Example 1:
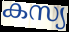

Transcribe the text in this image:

കസ്യ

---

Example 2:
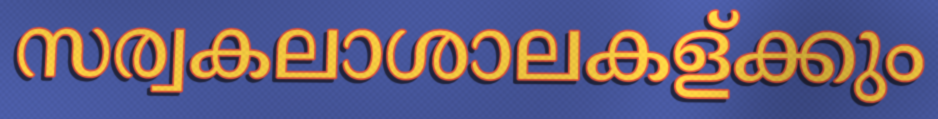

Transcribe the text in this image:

സര്വകലാശാലകള്ക്കും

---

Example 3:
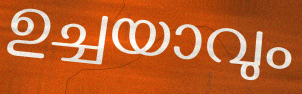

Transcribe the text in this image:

ഉച്ചയാവും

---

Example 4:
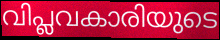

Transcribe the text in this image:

വിപ്ലവകാരിയുടെ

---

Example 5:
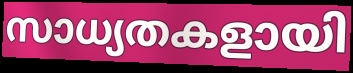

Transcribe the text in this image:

സാധ്യതകളായി